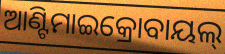
ଆଣ୍ଟିମାଇକ୍ରୋବାୟଲ୍